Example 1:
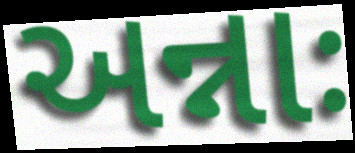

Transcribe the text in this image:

અન્નાઃ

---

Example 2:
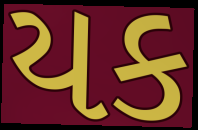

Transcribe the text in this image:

યક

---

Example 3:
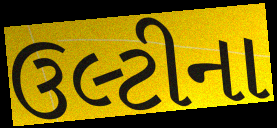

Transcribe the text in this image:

ઉલ્ટીના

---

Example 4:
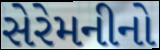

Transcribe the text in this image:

સેરેમનીનો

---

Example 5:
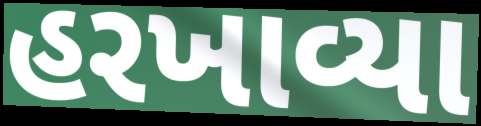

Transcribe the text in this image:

હરખાવ્યા